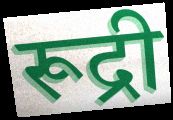
रूद्री